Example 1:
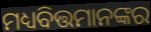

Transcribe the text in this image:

ମଧ୍ୟବିତ୍ତମାନଙ୍କର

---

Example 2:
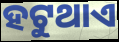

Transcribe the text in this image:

ହଟୁଥାଏ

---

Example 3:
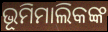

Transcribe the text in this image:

ଭୂମିମାଲିକଙ୍କ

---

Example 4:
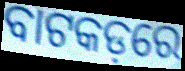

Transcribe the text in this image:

ବାଟକଡ଼ରେ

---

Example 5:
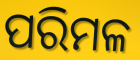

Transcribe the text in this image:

ପରିମଳ